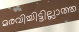
മരവിച്ചിട്ടില്ലാത്ത